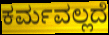
ಕರ್ಮವಲ್ಲದೆ